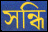
সন্ধি